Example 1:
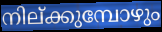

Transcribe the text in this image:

നില്ക്കുമ്പോഴും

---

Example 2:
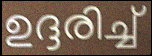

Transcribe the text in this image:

ഉദ്ദരിച്ച്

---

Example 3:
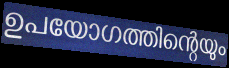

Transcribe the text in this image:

ഉപയോഗത്തിന്റെയും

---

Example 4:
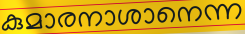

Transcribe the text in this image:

കുമാരനാശാനെന്ന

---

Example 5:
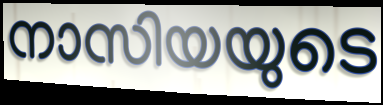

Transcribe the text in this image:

നാസിയയുടെ